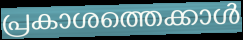
പ്രകാശത്തെക്കാൾ